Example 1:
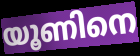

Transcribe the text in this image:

യൂണിനെ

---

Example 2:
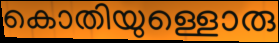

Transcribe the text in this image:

കൊതിയുള്ളൊരു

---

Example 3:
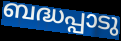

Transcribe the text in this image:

ബദ്ധപ്പാടു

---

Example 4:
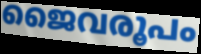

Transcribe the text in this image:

ജൈവരൂപം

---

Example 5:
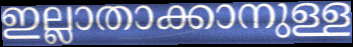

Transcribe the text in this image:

ഇല്ലാതാക്കാനുള്ള